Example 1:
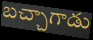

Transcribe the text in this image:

బచ్చాగాడు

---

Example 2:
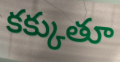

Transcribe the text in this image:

కక్కుతూ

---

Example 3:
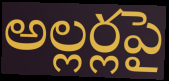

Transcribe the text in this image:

అల్లర్లపై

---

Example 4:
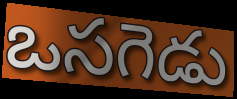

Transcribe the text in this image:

ఒసగెడు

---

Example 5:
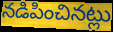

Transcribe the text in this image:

నడిపించినట్లు